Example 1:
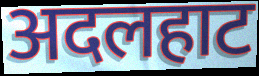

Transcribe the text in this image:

अदलहाट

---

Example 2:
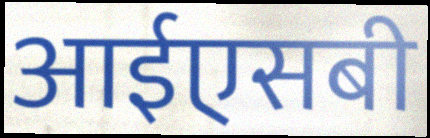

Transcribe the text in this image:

आईएसबी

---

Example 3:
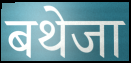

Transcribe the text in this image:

बथेजा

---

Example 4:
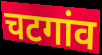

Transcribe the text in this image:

चटगांव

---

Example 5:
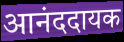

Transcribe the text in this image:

आनंददायक